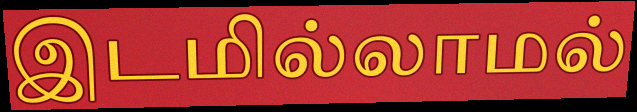
இடமில்லாமல்